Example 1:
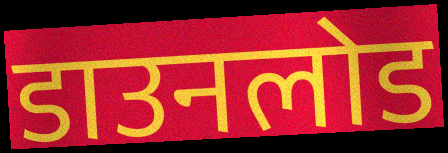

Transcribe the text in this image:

डाउनलोड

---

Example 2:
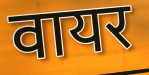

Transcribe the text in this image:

वायर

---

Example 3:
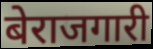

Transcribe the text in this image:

बेराजगारी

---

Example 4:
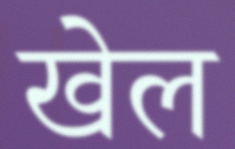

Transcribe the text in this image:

खेल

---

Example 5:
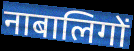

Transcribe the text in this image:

नाबालिगों